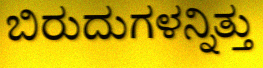
ಬಿರುದುಗಳನ್ನಿತ್ತು